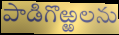
పాడిగొఱ్ఱలను